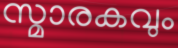
സ്മാരകവും